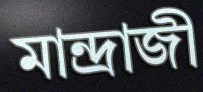
মান্দ্রাজী